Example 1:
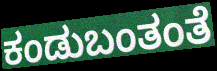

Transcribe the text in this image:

ಕಂಡುಬಂತಂತೆ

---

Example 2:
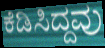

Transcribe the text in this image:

ಕೆಡಿಸಿದ್ದವು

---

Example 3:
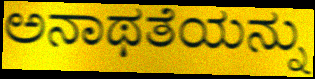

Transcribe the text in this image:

ಅನಾಥತೆಯನ್ನು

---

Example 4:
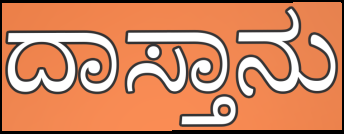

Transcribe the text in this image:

ದಾಸ್ತಾನು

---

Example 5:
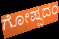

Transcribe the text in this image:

ಗೋಷ್ಪದಂ